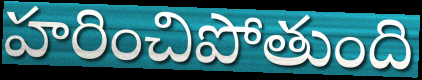
హరించిపోతుంది